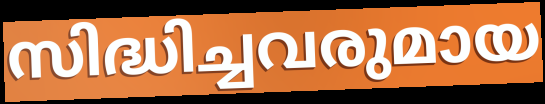
സിദ്ധിച്ചവരുമായ